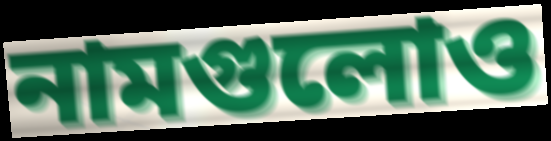
নামগুলোও